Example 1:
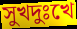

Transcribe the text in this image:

সুখদুঃখে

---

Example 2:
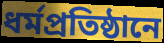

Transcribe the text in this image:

ধর্মপ্রতিষ্ঠানে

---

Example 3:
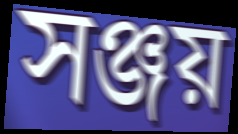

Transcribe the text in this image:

সঞ্জয়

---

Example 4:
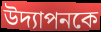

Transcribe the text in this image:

উদ্যাপনকে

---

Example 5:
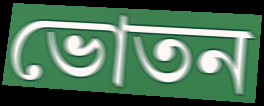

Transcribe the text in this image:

ভোতন